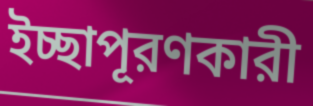
ইচ্ছাপূরণকারী